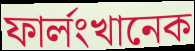
ফার্লংখানেক